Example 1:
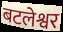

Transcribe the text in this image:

बटलेश्वर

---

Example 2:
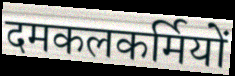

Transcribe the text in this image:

दमकलकर्मियों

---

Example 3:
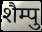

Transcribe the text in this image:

शैम्पु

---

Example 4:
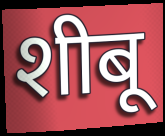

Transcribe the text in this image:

शीबू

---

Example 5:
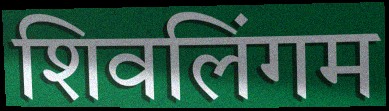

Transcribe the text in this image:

शिवलिंगम